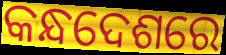
କନ୍ଧଦେଶରେ